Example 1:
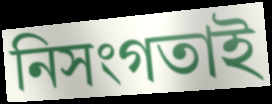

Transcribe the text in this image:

নিসংগতাই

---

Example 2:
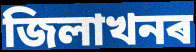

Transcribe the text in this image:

জিলাখনৰ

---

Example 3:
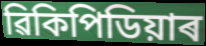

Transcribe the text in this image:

ৱিকিপিডিয়াৰ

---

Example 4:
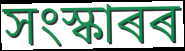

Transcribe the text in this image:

সংস্কাৰৰ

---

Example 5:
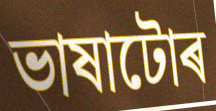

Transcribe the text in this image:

ভাষাটোৰ